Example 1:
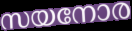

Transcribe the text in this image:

സയനോര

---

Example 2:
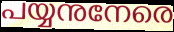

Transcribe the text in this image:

പയ്യനുനേരെ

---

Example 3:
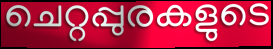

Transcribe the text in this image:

ചെറ്റപ്പുരകളുടെ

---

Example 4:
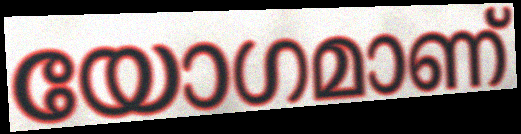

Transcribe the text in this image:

യോഗമാണ്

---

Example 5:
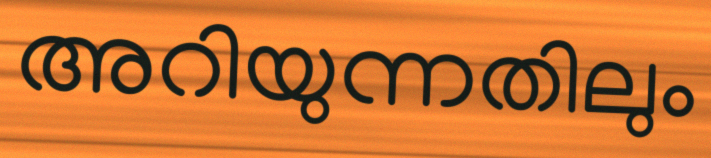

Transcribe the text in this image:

അറിയുന്നതിലും